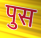
पुस